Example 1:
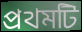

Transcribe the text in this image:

প্রথমটি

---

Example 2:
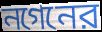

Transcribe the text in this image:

নগেনের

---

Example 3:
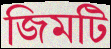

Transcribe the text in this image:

জিমটি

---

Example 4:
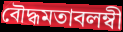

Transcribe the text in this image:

বৌদ্ধমতাবলম্বী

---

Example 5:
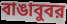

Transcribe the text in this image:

বাঙাবুবর